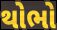
થોભો